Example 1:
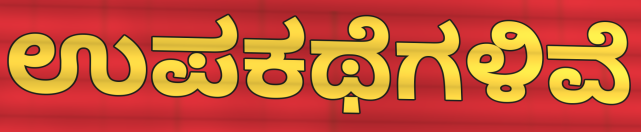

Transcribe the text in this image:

ಉಪಕಥೆಗಳಿವೆ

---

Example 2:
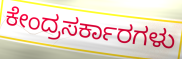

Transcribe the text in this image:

ಕೇಂದ್ರಸರ್ಕಾರಗಳು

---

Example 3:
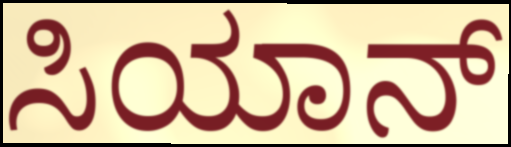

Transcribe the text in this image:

ಸಿಯಾನ್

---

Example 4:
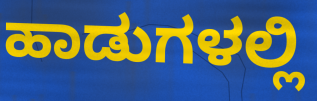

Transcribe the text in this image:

ಹಾಡುಗಳಲ್ಲಿ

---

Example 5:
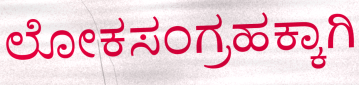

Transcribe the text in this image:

ಲೋಕಸಂಗ್ರಹಕ್ಕಾಗಿ